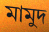
মামুদ